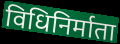
विधिनिर्माता